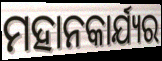
ମହାନକାର୍ଯ୍ୟର